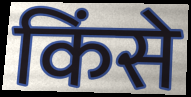
किंसे